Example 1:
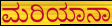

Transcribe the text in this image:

ಮರಿಯಾನಾ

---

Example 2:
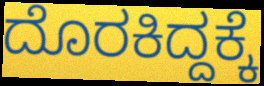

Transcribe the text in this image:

ದೊರಕಿದ್ದಕ್ಕೆ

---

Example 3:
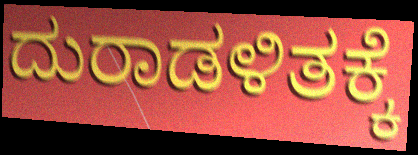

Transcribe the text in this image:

ದುರಾಡಳಿತಕ್ಕೆ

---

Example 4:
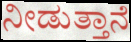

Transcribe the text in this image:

ನೀಡುತ್ತಾನೆ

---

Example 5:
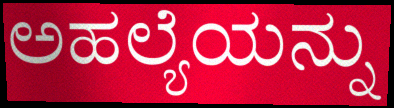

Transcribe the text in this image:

ಅಹಲ್ಯೆಯನ್ನು